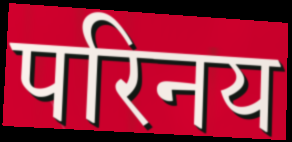
परिनय